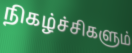
நிகழ்ச்சிகளும்